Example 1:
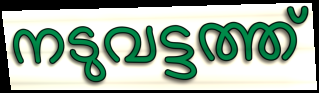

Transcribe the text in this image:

നടുവട്ടത്ത്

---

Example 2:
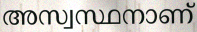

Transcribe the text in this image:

അസ്വസ്ഥനാണ്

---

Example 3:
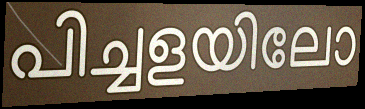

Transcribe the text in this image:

പിച്ചളയിലോ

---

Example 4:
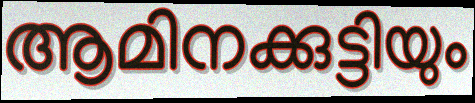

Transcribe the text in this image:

ആമിനക്കുട്ടിയും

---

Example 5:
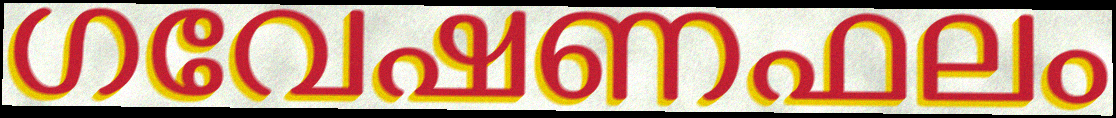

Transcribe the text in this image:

ഗവേഷണഫലം